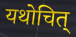
यथोचित्